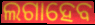
ଲଗାହେବ